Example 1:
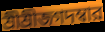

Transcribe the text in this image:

শ্রীশ্রীজগদম্বার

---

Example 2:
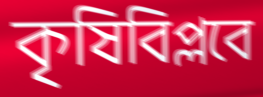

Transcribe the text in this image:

কৃষিবিপ্লবে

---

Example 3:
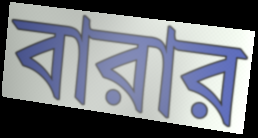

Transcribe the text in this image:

বারার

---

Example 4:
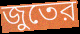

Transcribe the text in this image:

জুতের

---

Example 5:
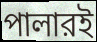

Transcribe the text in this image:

পালারই